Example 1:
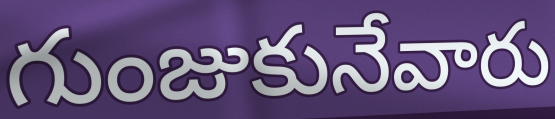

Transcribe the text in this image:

గుంజుకునేవారు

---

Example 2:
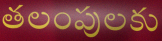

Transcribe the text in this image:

తలంపులకు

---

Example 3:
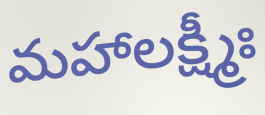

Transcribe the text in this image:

మహాలక్ష్మీః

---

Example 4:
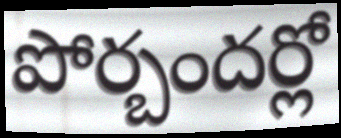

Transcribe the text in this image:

పోర్బందర్లో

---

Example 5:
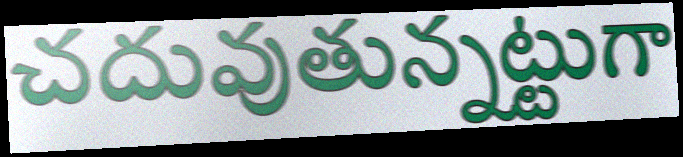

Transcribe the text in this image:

చదువుతున్నట్టుగా